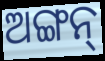
ଅଙ୍ଗନ୍